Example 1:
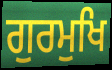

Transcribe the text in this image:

ਗੁਰਮੁਖਿ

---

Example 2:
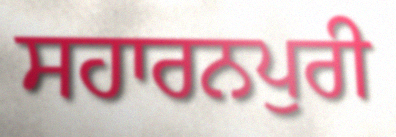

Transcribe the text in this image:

ਸਹਾਰਨਪੁਰੀ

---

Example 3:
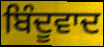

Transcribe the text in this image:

ਬਿੰਦੂਵਾਦ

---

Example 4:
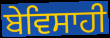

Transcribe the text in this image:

ਬੇਵਿਸਾਹੀ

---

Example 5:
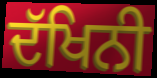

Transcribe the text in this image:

ਦੱਖਿਨੀ